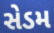
સેડમ